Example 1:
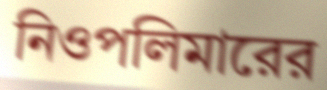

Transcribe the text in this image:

নিওপলিমারের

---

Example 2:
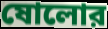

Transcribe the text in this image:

ষোলোর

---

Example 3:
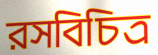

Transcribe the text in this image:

রসবিচিত্র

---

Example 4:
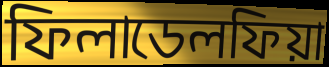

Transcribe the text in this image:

ফিলাডেলফিয়া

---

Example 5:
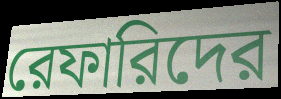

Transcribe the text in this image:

রেফারিদের